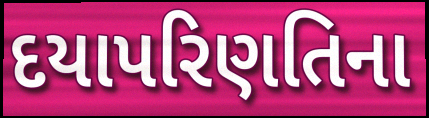
દયાપરિણતિના